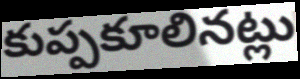
కుప్పకూలినట్లు